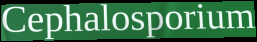
Cephalosporium